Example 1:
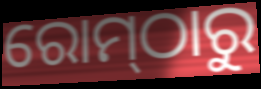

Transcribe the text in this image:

ରୋମ୍‌ଠାରୁ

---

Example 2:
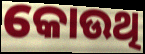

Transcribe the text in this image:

କୋଉଥି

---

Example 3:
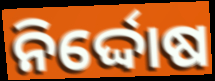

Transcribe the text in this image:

ନିର୍ଦ୍ଦୋଷ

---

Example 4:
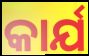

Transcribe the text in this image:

କାର୍ଯ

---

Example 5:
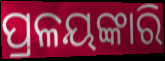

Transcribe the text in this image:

ପ୍ରଳୟଙ୍କାରି